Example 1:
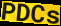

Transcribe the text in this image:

PDCs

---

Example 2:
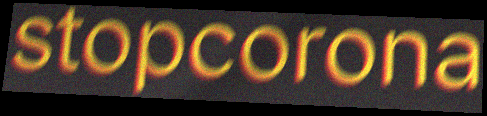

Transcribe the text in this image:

stopcorona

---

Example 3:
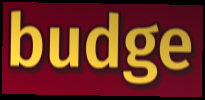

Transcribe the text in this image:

budge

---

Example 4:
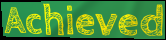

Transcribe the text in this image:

Achieved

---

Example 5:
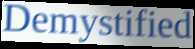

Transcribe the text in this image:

Demystified